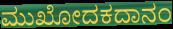
ಮುಖೋದಕದಾನಂ